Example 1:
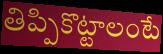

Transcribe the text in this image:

తిప్పికొట్టాలంటే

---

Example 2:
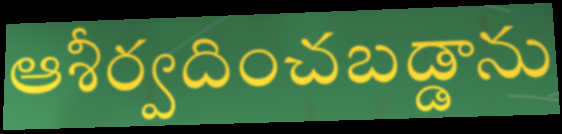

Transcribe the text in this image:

ఆశీర్వదించబడ్డాను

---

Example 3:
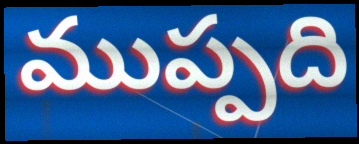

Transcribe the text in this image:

ముప్పది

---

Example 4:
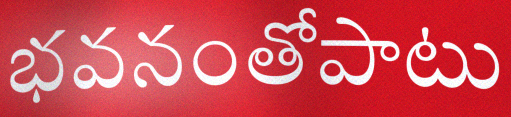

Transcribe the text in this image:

భవనంతోపాటు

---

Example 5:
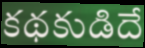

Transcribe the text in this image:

కథకుడిదే